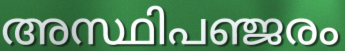
അസ്ഥിപഞ്ജരം